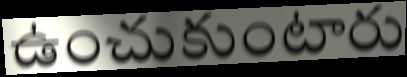
ఉంచుకుంటారు